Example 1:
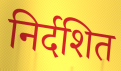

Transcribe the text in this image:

निर्दशित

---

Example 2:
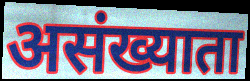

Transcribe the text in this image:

असंख्याता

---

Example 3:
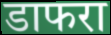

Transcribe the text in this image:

डाफरा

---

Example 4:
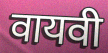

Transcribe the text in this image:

वायवी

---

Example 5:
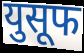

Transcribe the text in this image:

युसूफ